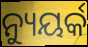
ନ୍ୟୁୟର୍କ